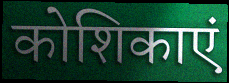
कोशिकाएं